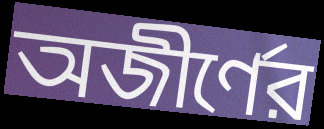
অজীর্ণের